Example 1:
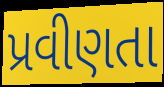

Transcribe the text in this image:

પ્રવીણતા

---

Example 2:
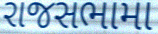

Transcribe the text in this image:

રાજસભામા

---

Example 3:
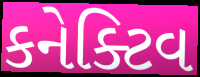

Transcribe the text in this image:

કનેક્ટિવ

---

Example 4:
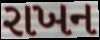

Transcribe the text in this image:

રાખન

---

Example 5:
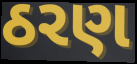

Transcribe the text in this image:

ઠરણ